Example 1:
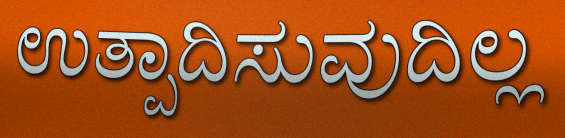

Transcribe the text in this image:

ಉತ್ಪಾದಿಸುವುದಿಲ್ಲ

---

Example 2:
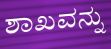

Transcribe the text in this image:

ಶಾಖವನ್ನು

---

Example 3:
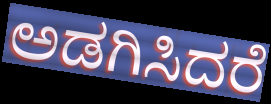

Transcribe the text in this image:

ಅಡಗಿಸಿದರೆ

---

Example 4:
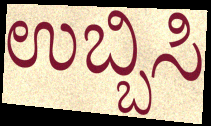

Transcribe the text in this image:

ಉಬ್ಬಿಸಿ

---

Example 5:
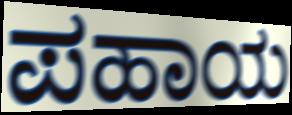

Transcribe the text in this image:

ಪಹಾಯ